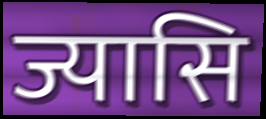
ज्यासि